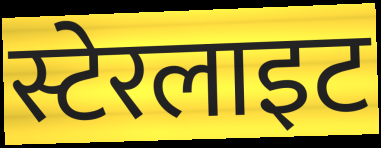
स्टेरलाइट